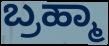
ಬ್ರಹ್ಮಾ